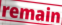
remain